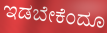
ಇಡಬೇಕೆಂದೂ